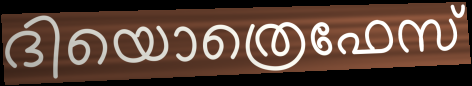
ദിയൊത്രെഫേസ്